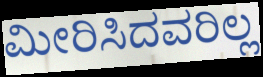
ಮೀರಿಸಿದವರಿಲ್ಲ